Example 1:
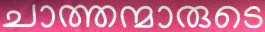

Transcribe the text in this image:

ചാത്തന്മാരുടെ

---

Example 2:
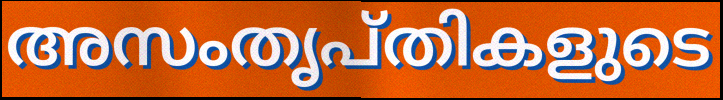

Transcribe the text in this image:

അസംതൃപ്തികളുടെ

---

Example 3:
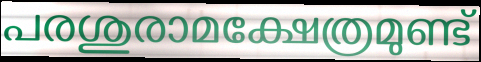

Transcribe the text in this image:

പരശുരാമക്ഷേത്രമുണ്ട്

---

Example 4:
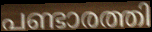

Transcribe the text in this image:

പണ്ടാരത്തി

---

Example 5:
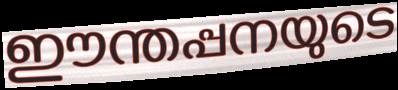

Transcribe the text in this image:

ഈന്തപ്പനയുടെ